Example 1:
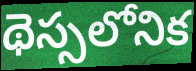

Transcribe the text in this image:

థెస్సలోనిక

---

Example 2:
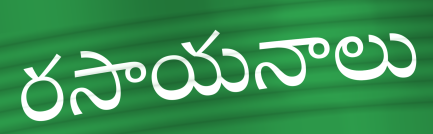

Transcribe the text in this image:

రసాయనాలు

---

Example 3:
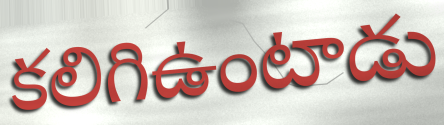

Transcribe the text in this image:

కలిగిఉంటాడు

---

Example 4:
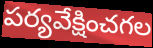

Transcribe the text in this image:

పర్యవేక్షించగల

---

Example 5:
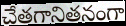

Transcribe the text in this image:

చేతగానితనంగా